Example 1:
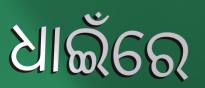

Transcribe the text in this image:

ଧାଇଁରେ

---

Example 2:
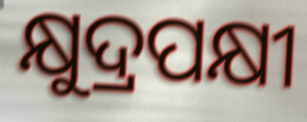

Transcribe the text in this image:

କ୍ଷୁଦ୍ରପକ୍ଷୀ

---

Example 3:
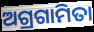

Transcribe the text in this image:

ଅଗ୍ରଗାମିତା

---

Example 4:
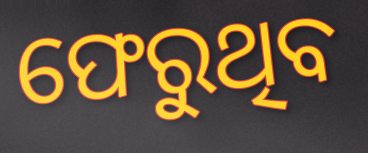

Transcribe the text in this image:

ଫେରୁଥିବ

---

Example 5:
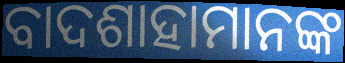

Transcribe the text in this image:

ବାଦଶାହାମାନଙ୍କ